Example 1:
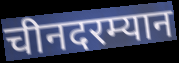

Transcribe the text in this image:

चीनदरम्यान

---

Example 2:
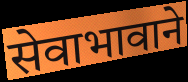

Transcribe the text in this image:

सेवाभावाने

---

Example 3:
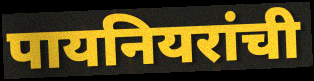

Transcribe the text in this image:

पायनियरांची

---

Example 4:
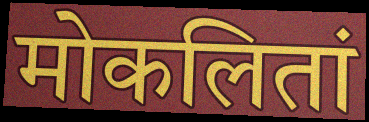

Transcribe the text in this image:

मोकलितां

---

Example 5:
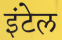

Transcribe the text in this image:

इंटेल